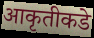
आकृतीकडे